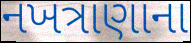
નખત્રાણાના